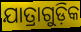
ଯାତ୍ରାଗୁଡ଼ିକ